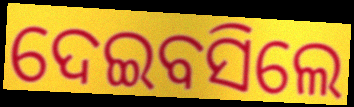
ଦେଇବସିଲେ